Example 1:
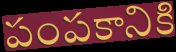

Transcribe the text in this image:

పంపకానికి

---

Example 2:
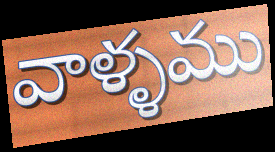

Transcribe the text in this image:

వాళ్ళము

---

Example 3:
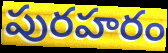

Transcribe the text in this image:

పురహరం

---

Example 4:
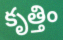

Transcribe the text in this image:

కృత్తిం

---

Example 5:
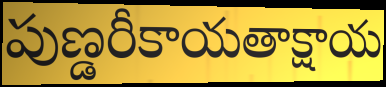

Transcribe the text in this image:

పుణ్డరీకాయతాక్షాయ